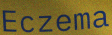
Eczema